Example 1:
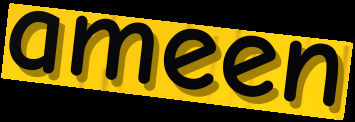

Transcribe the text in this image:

ameen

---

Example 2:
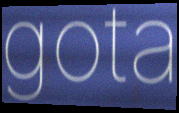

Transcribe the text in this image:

gota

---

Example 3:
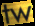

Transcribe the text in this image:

tw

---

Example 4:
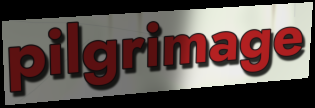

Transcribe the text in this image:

pilgrimage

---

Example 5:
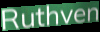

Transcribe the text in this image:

Ruthven